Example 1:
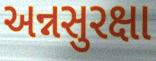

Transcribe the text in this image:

અન્નસુરક્ષા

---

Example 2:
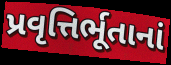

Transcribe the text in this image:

પ્રવૃત્તિર્ભૂતાનાં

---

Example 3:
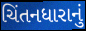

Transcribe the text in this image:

ચિંતનધારાનું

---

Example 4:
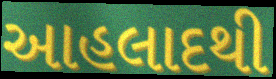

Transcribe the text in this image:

આહલાદથી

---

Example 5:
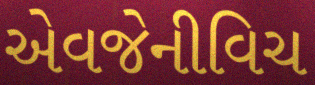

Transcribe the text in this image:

એવજેનીવિચ